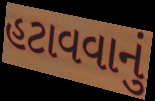
હટાવવાનું